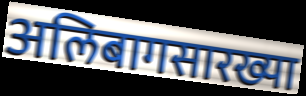
अलिबागसारख्या